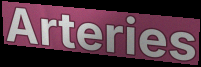
Arteries